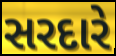
સરદારે